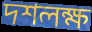
দশলক্ষ